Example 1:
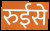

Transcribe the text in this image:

रुईसे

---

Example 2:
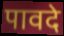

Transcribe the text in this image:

पावदे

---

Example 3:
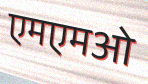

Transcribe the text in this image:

एमएमओ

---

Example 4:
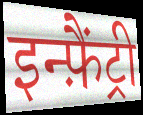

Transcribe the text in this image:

इन्फ़ैंट्री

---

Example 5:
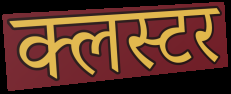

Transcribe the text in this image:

क्लस्टर